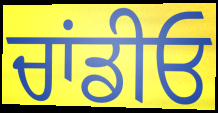
ਚਾਂਡੀਓ